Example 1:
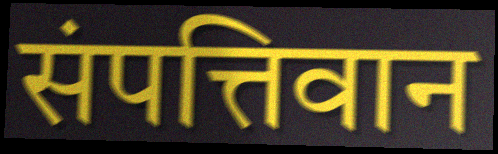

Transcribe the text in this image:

संपत्तिवान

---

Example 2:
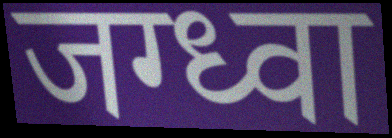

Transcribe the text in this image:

जग्ध्वा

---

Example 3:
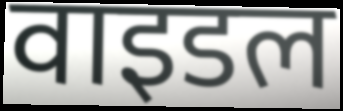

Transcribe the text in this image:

वाइडल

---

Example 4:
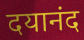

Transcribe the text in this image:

दयानंद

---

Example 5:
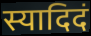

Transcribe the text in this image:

स्यादिदं